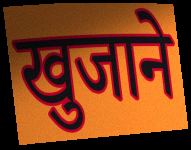
खुजाने